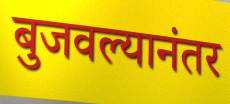
बुजवल्यानंतर